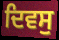
ਦਿਵਸੁ